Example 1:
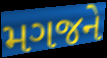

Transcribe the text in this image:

મગજને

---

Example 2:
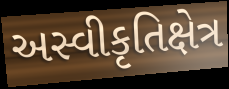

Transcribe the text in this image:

અસ્વીકૃતિક્ષેત્ર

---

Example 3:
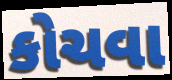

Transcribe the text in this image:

કોચવા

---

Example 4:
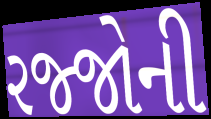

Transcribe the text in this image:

રજ્જોની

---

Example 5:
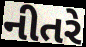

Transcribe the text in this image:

નીતરે